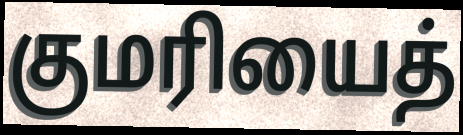
குமரியைத்